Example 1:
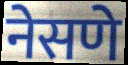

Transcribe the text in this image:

नेसणे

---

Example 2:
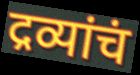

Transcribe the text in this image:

द्रव्यांचं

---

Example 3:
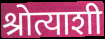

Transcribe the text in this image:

श्रोत्याशी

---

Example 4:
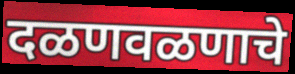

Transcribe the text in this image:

दळणवळणाचे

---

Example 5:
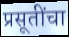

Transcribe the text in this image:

प्रसूतींचा